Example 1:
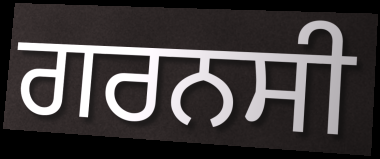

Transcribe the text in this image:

ਗਰਨਸੀ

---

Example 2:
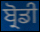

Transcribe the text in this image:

ਬ੍ਰੋਡੀ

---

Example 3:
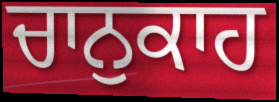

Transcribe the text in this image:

ਚਾਨੁਕਾਹ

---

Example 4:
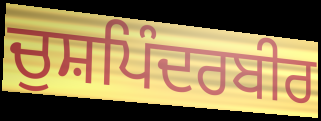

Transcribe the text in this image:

ਚੁਸ਼ਪਿੰਦਰਬੀਰ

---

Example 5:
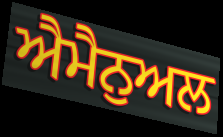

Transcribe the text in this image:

ਐਮੈਨੁਅਲ